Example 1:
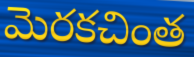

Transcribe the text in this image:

మెరకచింత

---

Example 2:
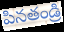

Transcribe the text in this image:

పినతండ్రి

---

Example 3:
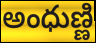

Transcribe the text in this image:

అంధుణ్ణి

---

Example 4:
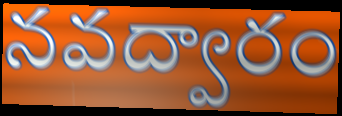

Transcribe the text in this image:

నవద్వారం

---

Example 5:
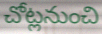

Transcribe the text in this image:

చోట్లనుంచి